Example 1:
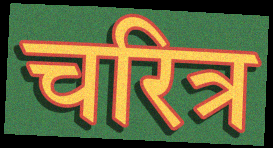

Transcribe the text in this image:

चरित्र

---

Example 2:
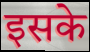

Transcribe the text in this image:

इसके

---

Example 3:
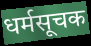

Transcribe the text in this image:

धर्मसूचक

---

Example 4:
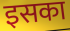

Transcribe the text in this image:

इसका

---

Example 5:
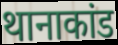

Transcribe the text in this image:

थानाकांड